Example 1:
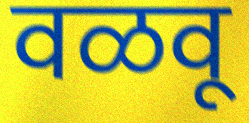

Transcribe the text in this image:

वळवू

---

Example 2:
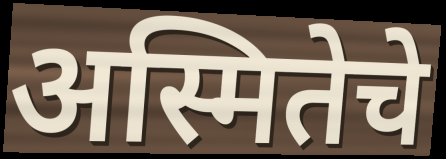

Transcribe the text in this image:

अस्मितेचे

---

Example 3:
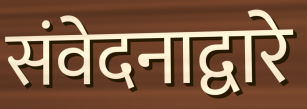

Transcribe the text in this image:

संवेदनाद्वारे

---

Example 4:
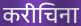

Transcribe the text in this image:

करीचिना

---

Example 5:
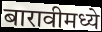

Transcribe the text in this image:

बारावीमध्ये